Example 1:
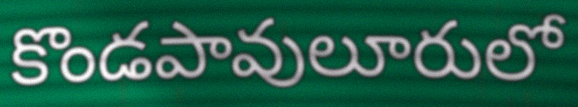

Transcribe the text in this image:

కొండపావులూరులో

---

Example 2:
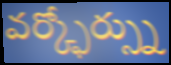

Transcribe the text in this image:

వర్క్ఫోర్స్ను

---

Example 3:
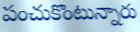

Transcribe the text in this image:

పంచుకొంటున్నారు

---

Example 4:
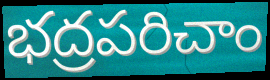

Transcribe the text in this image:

భద్రపరిచాం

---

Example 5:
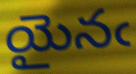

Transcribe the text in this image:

యైనఁ